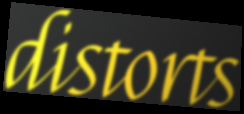
distorts